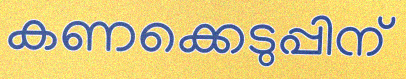
കണക്കെടുപ്പിന്